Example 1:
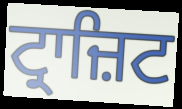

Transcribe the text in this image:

ਟ੍ਰਾਜ਼ਿਟ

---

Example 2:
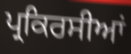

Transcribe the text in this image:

ਪ੍ਰਕਿਰਸੀਆਂ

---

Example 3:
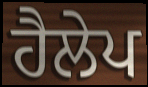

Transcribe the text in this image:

ਹੈਲੇਪ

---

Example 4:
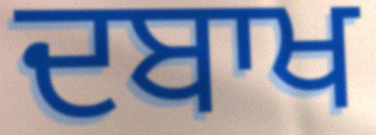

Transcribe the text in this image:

ਦਬਾਖ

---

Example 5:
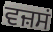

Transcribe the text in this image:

ਵਜ਼ਸਂ